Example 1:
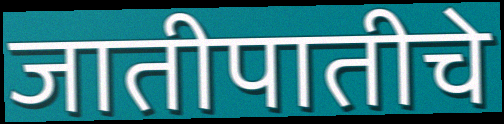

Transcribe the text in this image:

जातीपातीचे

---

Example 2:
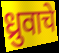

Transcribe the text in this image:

ध्रुवाचे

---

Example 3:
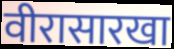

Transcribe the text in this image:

वीरासारखा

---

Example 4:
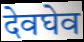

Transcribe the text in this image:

देवघेव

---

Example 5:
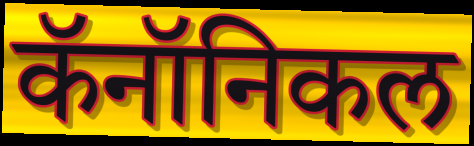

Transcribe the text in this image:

कॅनॉनिकल